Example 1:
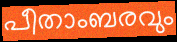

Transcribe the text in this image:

പീതാംബരവും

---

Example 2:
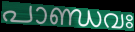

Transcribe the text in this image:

പാണ്ഡവഃ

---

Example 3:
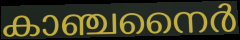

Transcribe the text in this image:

കാഞ്ചനൈർ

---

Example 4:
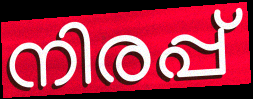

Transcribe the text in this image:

നിരപ്പ്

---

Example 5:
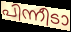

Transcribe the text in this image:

പിന്നീടാ